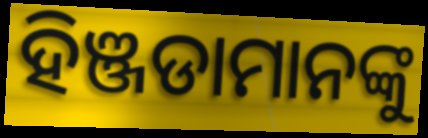
ହିଞ୍ଜଡାମାନଙ୍କୁ